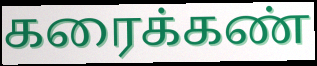
கரைக்கண்